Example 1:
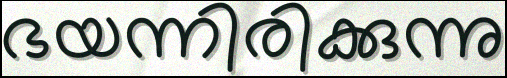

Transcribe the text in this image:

ഭയന്നിരിക്കുന്നു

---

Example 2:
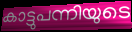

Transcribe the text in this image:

കാട്ടുപന്നിയുടെ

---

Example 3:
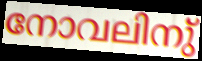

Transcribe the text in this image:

നോവലിനു്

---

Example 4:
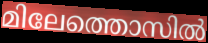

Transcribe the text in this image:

മിലേത്തൊസിൽ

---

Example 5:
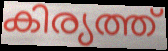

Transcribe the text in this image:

കിര്യത്ത്